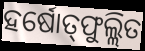
ହର୍ଷୋତ୍‌ଫୁଲ୍ଲିତ